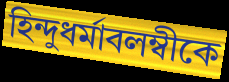
হিন্দুধর্মাবলম্বীকে